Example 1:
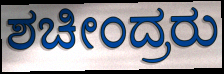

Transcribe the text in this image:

ಶಚೀಂದ್ರರು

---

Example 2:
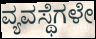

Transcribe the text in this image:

ವ್ಯವಸ್ಥೆಗಳೇ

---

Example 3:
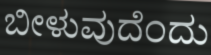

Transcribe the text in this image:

ಬೀಳುವುದೆಂದು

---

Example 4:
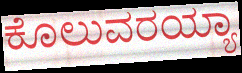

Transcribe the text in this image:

ಕೊಲುವರಯ್ಯಾ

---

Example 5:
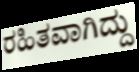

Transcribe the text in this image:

ರಹಿತವಾಗಿದ್ದು